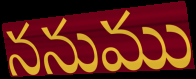
ననుము